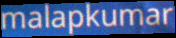
malapkumar